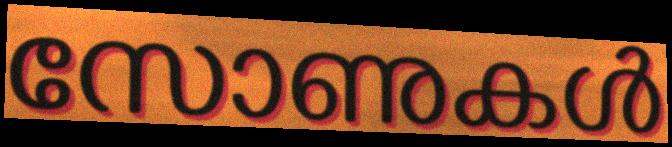
സോണുകൾ